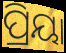
ପ୍ରିୟା